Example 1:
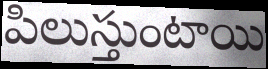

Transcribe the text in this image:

పిలుస్తుంటాయి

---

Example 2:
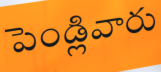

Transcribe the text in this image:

పెండ్లివారు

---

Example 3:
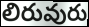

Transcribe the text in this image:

లిరువురు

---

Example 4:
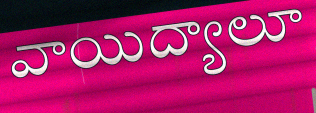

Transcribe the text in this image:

వాయిద్యాలూ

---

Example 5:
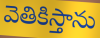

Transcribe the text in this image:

వెతికిస్తాను